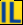
IL